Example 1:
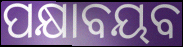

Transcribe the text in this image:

ପକ୍ଷାବୟବ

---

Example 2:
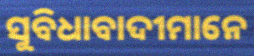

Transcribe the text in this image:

ସୁବିଧାବାଦୀମାନେ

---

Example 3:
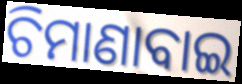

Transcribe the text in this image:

ଚିମାଣାବାଇ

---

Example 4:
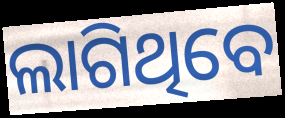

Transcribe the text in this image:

ଲାଗିଥିବେ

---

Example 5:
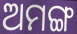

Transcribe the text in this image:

ଅମଙ୍ଗ